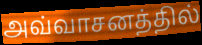
அவ்வாசனத்தில்